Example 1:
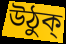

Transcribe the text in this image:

উঠুক্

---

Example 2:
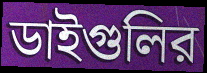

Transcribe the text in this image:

ডাইগুলির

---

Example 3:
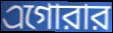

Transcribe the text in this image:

এগোরার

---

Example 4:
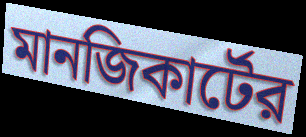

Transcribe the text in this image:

মানজিকার্টের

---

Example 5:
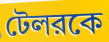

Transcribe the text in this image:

টেলরকে